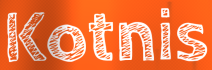
Kotnis